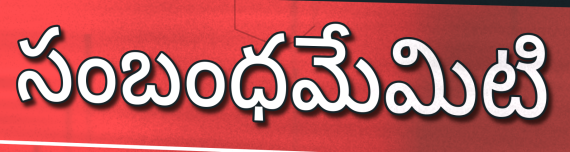
సంబంధమేమిటి